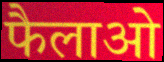
फैलाओ